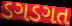
ડગડગત